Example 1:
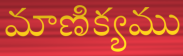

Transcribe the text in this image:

మాణిక్యము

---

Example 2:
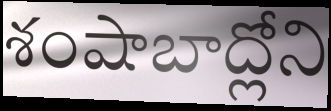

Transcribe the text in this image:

శంషాబాద్లోని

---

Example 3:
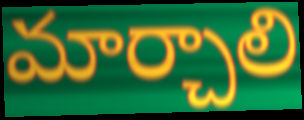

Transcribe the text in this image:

మార్చాలి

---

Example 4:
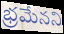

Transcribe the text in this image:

భ్రమేనని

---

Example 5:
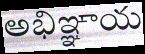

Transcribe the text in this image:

అభిఞ్ఞాయ